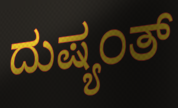
ದುಷ್ಯಂತ್